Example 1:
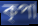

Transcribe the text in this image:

কৃপা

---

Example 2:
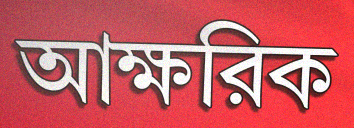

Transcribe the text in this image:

আক্ষরিক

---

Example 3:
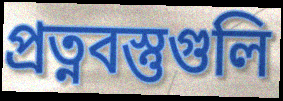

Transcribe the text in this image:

প্রত্নবস্তুগুলি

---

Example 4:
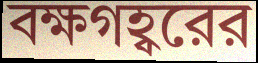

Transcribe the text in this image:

বক্ষগহ্বরের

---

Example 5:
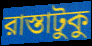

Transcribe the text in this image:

রাস্তাটুকু